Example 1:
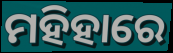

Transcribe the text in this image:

ମହିହାରେ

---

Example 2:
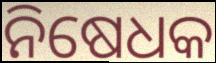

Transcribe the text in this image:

ନିଷେଧକ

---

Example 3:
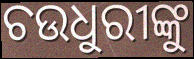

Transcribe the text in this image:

ଚଉଧୁରୀଙ୍କୁ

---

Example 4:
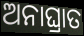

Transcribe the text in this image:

ଅନାଘ୍ରାତ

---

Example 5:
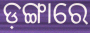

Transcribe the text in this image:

ଡ଼ଙ୍ଗାରେ